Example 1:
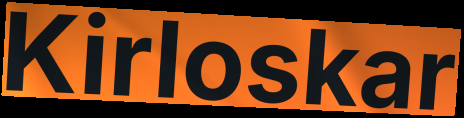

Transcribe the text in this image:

Kirloskar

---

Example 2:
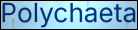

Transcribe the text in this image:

Polychaeta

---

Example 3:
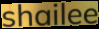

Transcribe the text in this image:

shailee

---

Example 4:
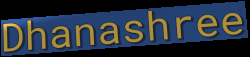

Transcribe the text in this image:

Dhanashree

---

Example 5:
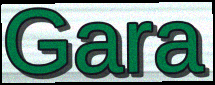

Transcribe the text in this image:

Gara